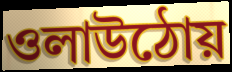
ওলাউঠোয়